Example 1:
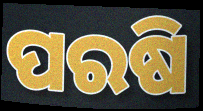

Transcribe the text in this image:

ପରଷି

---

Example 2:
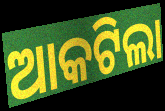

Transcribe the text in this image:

ଆକଟିଲା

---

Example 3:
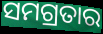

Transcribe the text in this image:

ସମଗ୍ରତାର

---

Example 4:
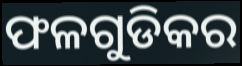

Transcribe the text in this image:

ଫଳଗୁଡିକର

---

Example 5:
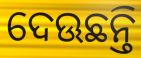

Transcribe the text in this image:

ଦେଊଛନ୍ତି